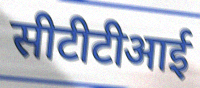
सीटीटीआई